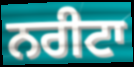
ਨਰੀਟਾ